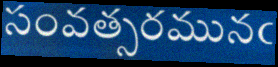
సంవత్సరమునఁ